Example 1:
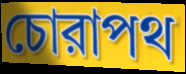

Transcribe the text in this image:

চোরাপথ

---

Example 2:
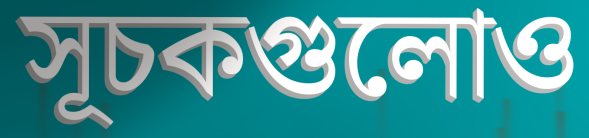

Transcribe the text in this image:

সূচকগুলোও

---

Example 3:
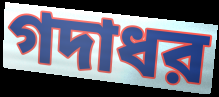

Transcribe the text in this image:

গদাধর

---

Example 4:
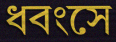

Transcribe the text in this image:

ধবংসে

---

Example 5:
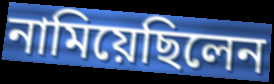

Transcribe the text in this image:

নামিয়েছিলেন